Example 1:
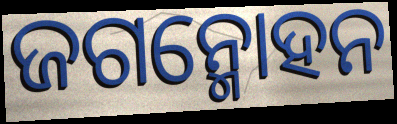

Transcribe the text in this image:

ଜଗନ୍ମୋହନ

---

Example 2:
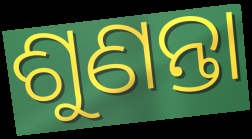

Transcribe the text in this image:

ଶୁଣନ୍ତା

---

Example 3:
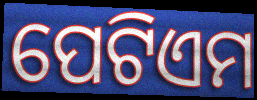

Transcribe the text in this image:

ପେଟିଏମ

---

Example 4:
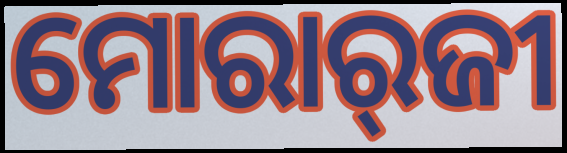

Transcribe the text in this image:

ମୋରାର୍‌ଜୀ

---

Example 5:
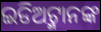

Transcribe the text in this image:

ଇଡିଅଟ୍ମାନଙ୍କ